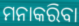
ମନାକରିବା